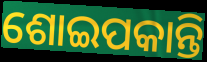
ଶୋଇପକାନ୍ତି